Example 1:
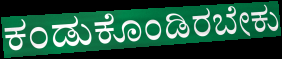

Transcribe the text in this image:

ಕಂಡುಕೊಂಡಿರಬೇಕು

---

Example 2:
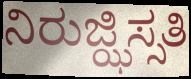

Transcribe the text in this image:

ನಿರುಜ್ಝಿಸ್ಸತಿ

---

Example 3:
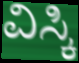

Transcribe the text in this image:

ವಿಸ್ಕಿ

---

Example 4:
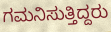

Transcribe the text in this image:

ಗಮನಿಸುತ್ತಿದ್ದರು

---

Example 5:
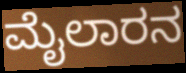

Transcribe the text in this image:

ಮೈಲಾರನ